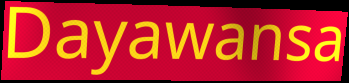
Dayawansa